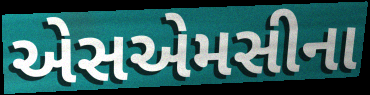
એસએમસીના